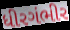
ધીરગંભીર